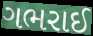
ગભરાઈ